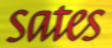
sates